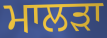
ਮਾਲੜਾ